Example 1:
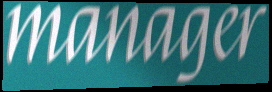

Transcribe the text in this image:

manager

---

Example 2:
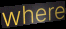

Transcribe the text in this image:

where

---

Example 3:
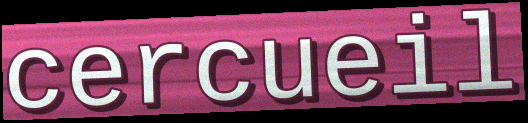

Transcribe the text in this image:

cercueil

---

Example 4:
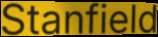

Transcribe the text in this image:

Stanfield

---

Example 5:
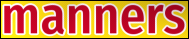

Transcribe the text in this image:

manners